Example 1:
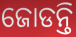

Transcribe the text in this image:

ଜୋଡନ୍ତି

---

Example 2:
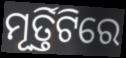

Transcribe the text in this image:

ମୂର୍ତ୍ତିଟିରେ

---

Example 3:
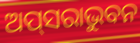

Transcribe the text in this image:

ଅପ୍‍ସରାଭୁବନ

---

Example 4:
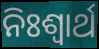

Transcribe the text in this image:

ନିଃଶ୍ୱାର୍ଥ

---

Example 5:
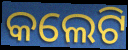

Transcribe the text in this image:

କଲେଟି